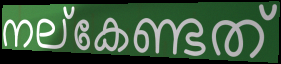
നല്കേണ്ടത്